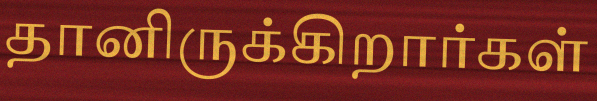
தானிருக்கிறார்கள்